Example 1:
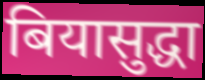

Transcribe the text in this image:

बियासुद्धा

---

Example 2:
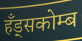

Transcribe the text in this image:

हँड्सकोम्ब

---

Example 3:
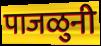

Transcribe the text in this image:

पाजळुनी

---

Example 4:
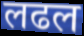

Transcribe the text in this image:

लढल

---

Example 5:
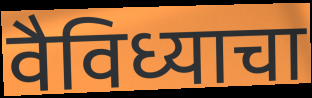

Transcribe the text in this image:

वैविध्याचा